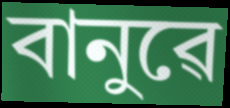
বানুৱে